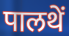
पालथें